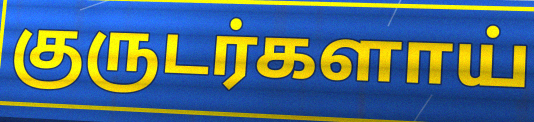
குருடர்களாய்